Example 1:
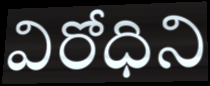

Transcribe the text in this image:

విరోధిని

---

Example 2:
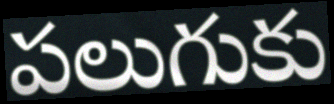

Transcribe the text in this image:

పలుగుకు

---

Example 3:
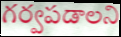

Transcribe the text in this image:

గర్వపడాలని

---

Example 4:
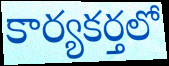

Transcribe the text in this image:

కార్యకర్తలో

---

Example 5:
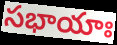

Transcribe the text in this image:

సభాయాః